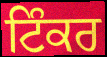
ਟਿੰਕਰ